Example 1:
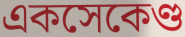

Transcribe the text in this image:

একসেকেণ্ড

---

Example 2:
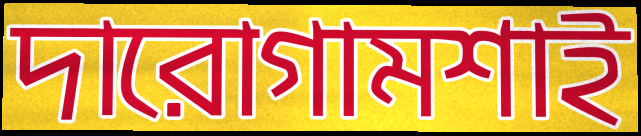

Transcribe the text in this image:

দারোগামশাই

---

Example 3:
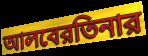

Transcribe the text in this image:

আলবেরতিনার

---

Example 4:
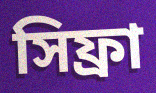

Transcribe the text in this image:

সিফ্রা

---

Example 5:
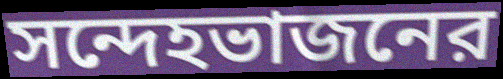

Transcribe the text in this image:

সন্দেহভাজনের